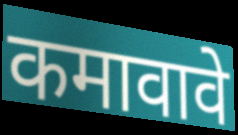
कमावावे